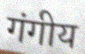
गंगीय